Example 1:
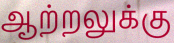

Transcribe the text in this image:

ஆற்றலுக்கு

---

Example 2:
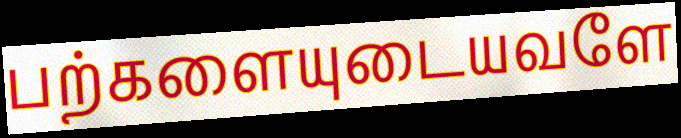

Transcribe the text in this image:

பற்களையுடையவளே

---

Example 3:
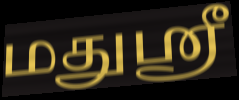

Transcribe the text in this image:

மதுஸ்ரீ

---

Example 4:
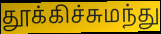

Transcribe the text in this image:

தூக்கிச்சுமந்து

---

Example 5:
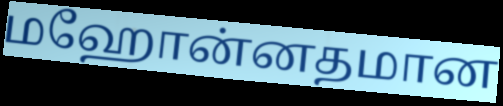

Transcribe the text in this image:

மஹோன்னதமான